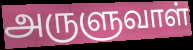
அருளுவாள்